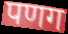
पणग